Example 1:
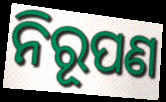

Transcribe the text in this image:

ନିରୂପଣ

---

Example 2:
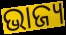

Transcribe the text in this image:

ଭାଜ୍ୟ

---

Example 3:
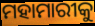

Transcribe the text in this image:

ମହାମାରୀକୁ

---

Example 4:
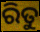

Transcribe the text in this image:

ରିତୁ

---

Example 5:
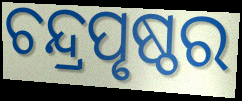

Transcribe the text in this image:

ଚନ୍ଦ୍ରପୃଷ୍ଠର